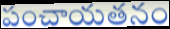
పంచాయతనం